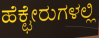
ಹೆಕ್ಟೇರುಗಳಲ್ಲಿ